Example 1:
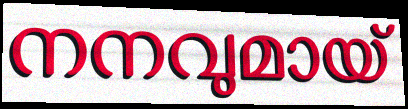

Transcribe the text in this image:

നനവുമായ്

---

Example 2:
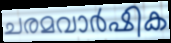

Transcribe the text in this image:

ചരമവാർഷിക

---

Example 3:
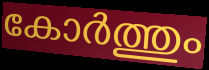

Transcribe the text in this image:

കോർത്തും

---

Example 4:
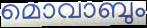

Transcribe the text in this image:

മൊവാബും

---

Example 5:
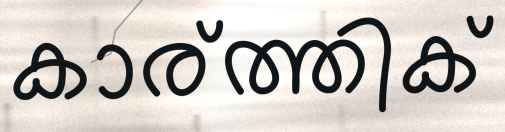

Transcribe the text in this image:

കാര്ത്തിക്